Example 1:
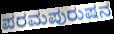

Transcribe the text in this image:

ಪರಮಪುರುಷನ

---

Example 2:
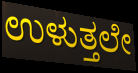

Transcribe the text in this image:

ಉಳುತ್ತಲೇ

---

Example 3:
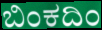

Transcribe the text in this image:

ಬಿಂಕದಿಂ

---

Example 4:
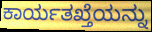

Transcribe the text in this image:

ಕಾರ್ಯತಖ್ತೆಯನ್ನು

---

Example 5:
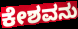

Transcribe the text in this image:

ಕೇಶವನು